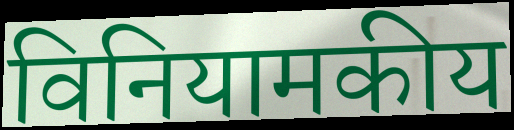
विनियामकीय